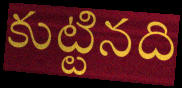
కుట్టినది